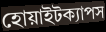
হোয়াইটক্যাপস